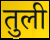
तुली